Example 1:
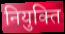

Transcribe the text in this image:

नियुक्‍ति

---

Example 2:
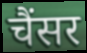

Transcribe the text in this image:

चैंसर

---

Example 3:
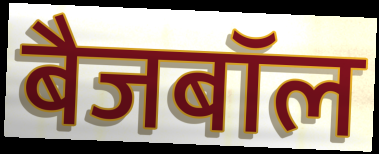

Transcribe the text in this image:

बैजबॉल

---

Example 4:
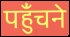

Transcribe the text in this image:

पहुंँचने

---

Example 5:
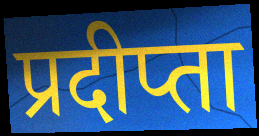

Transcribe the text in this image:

प्रदीप्ता